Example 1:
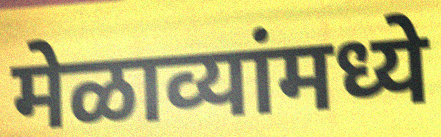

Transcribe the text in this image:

मेळाव्यांमध्ये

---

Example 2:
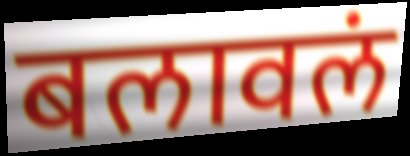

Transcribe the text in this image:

बलावलं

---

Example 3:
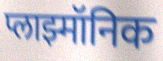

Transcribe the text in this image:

प्लाझ्मॉनिक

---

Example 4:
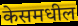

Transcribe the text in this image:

केसमधील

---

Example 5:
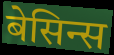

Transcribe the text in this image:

बेसिन्स